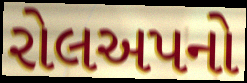
રોલઅપનો